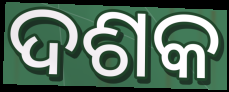
ଦଶକ